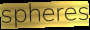
spheres